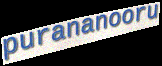
purananooru